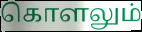
கொளலும்